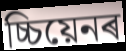
চ্চিয়েনৰ